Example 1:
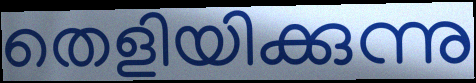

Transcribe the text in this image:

തെളിയിക്കുന്നു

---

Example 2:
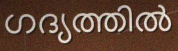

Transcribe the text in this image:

ഗദ്യത്തിൽ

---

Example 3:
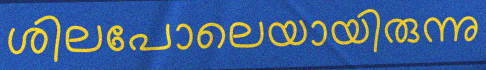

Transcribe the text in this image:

ശിലപോലെയായിരുന്നു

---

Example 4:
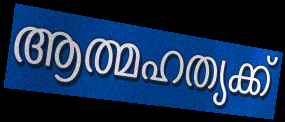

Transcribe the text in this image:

ആത്മഹത്യക്ക്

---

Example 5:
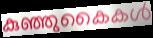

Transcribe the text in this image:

കുഞ്ഞുകൈകൾ